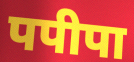
पपीपा